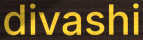
divashi